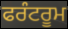
ਫਰੰਟਰੂਮ